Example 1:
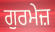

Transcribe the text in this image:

ਗੁਰਮੇਜ਼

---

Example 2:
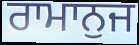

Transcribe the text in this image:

ਰਾਮਾਨੁਜ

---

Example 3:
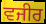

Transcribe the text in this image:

ਵਜੀਰ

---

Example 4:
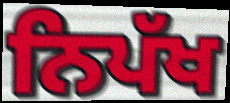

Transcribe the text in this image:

ਨਿਪੱਖ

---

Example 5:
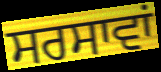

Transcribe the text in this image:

ਸਰਸਾਵਾਂ